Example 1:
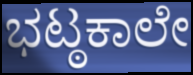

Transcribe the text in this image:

ಭಟ್ಠಕಾಲೇ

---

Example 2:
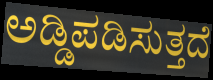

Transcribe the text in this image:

ಅಡ್ಡಿಪಡಿಸುತ್ತದೆ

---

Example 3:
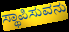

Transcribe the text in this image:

ಸ್ಥಾಪಿಸುವನು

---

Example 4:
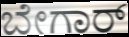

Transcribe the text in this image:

ಬೇಗಾರ್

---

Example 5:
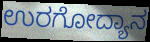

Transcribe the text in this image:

ಉರಗೋದ್ಯಾನ